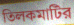
তিলকমাটির